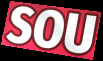
SOU